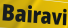
Bairavi